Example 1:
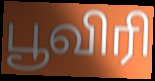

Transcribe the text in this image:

பூவிரி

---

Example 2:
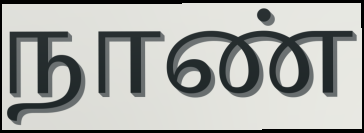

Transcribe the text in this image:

நாண்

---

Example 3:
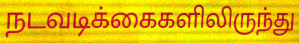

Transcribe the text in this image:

நடவடிக்கைகளிலிருந்து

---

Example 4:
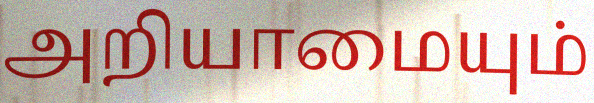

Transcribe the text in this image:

அறியாமையும்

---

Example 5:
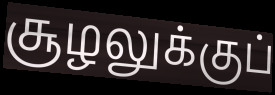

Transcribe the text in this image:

சூழலுக்குப்